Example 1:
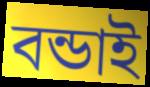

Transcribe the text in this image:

বন্ডাই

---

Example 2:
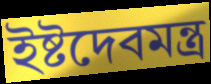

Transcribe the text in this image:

ইষ্টদেবমন্ত্র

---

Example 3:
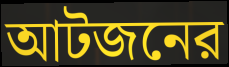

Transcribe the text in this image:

আটজনের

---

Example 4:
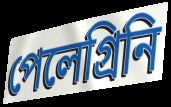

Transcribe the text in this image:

পেলেগ্রিনি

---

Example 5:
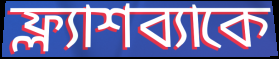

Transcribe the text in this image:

ফ্ল্যাশব্যাকে